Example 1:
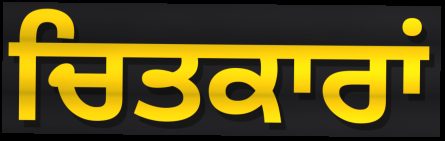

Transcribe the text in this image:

ਚਿਤਕਾਰਾਂ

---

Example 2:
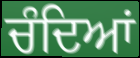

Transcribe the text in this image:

ਚੰਦਿਆਂ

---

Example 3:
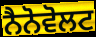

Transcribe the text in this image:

ਨੈਨੋਵੋਲਟ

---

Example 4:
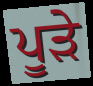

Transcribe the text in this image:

ਪੂੜੇ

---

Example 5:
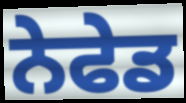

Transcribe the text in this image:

ਨੇਫੇਡ